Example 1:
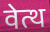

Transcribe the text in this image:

वेत्थ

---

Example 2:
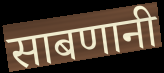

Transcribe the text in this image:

साबणानी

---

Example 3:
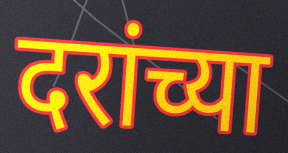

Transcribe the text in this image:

दरांच्या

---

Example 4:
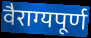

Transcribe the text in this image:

वैराग्यपूर्ण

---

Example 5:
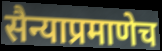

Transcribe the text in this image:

सैन्याप्रमाणेच